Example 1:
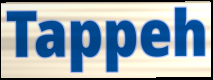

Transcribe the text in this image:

Tappeh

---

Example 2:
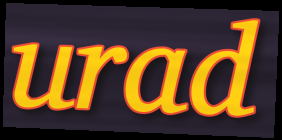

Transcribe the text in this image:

urad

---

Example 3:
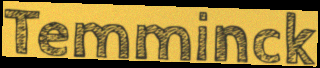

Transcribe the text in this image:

Temminck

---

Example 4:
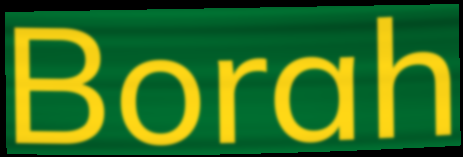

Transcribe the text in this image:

Borah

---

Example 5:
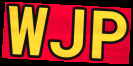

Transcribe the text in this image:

WJP